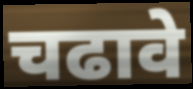
चढावे